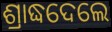
ଶ୍ରାଦ୍ଧଦେଲେ